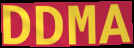
DDMA